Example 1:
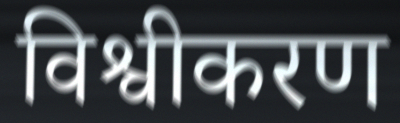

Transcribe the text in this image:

विश्वीकरण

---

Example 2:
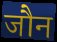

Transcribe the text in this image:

जौन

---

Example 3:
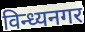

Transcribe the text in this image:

विन्ध्यनगर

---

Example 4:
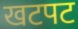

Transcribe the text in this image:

खटपट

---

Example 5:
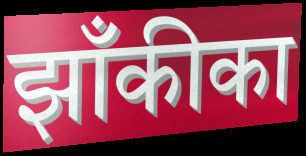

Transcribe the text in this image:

झाँकीका